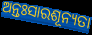
ଅନ୍ତଃସାରଶୂନ୍ୟତା